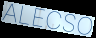
ALECSO